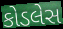
કોડલેસ